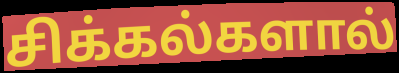
சிக்கல்களால்